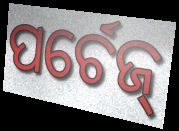
ପର୍ଚେଜ୍